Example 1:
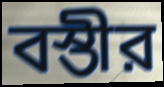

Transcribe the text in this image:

বস্তীর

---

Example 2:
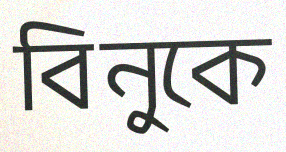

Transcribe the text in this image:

বিনুকে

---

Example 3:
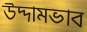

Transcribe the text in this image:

উদ্দামভাব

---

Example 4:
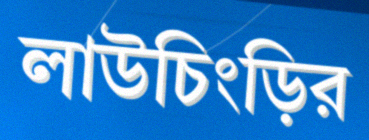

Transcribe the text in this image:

লাউচিংড়ির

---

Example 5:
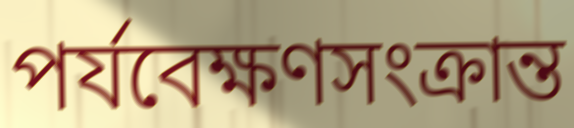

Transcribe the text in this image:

পর্যবেক্ষণসংক্রান্ত